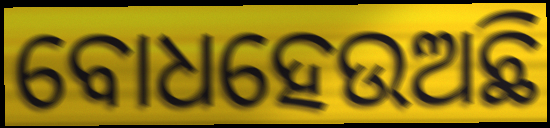
ବୋଧହେଉଅଛି